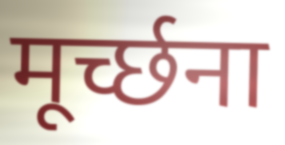
मूर्च्छना